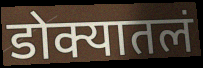
डोक्यातलं